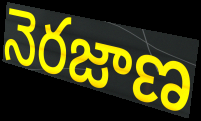
నెరజాణ